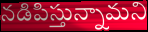
నడిపిస్తున్నామని